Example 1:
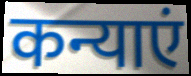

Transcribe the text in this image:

कन्याएं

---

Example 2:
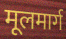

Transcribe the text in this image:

मूलमार्ग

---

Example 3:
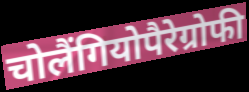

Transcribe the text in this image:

चोलैंगियोपैरेग्रोफी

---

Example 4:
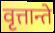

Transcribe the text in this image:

वृत्तान्ते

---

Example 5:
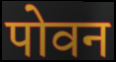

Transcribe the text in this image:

पोवन